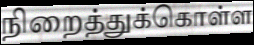
நிறைத்துக்கொள்ள